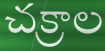
చక్రాల